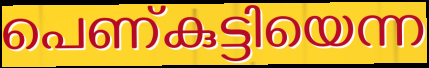
പെണ്കുട്ടിയെന്ന